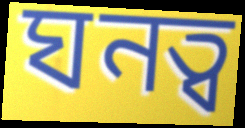
ঘনত্ব